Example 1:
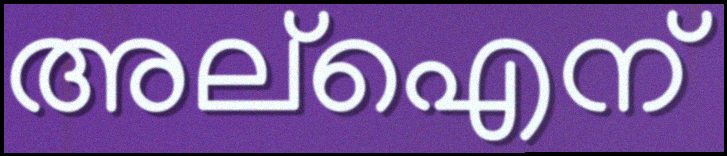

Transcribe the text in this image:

അല്ഐന്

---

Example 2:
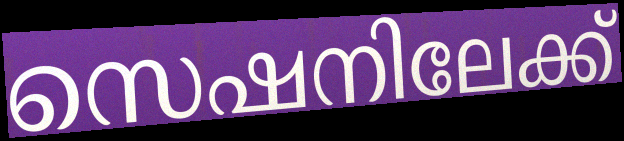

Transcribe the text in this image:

സെഷനിലേക്ക്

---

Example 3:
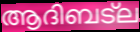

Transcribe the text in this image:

ആദിബട്ല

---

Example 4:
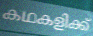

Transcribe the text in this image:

കഥകളിക്ക്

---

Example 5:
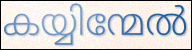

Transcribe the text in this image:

കയ്യിന്മേൽ